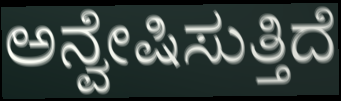
ಅನ್ವೇಷಿಸುತ್ತಿದೆ